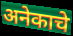
अनेकाचे